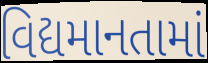
વિદ્યમાનતામાં